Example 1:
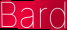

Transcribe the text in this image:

Bard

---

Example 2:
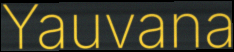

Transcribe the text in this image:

Yauvana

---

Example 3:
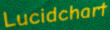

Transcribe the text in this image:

Lucidchart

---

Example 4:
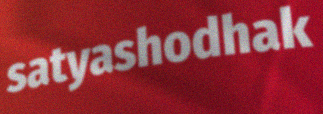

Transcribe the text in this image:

satyashodhak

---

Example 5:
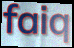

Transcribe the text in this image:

faiq